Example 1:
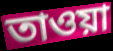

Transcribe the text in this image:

তাওয়া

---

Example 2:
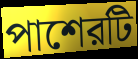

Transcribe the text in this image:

পাশেরটি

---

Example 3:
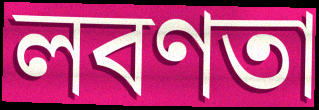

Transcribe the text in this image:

লবণতা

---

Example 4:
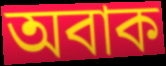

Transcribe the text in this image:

অবাক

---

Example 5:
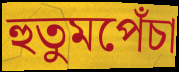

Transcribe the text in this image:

হুতুমপেঁচা